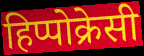
हिप्पोक्रेसी